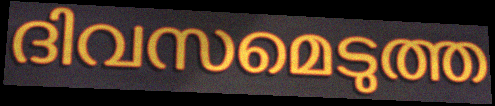
ദിവസമെടുത്ത